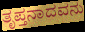
ತೃಪ್ತನಾದವನು